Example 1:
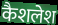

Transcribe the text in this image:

कैशलेश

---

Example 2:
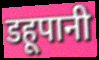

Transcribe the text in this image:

डहूपानी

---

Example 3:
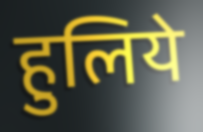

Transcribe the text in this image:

हुलिये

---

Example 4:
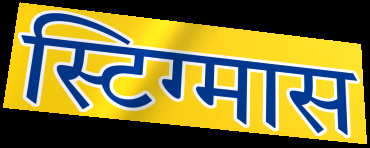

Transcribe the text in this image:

स्टिग्मास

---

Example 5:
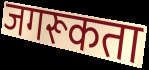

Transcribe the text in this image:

जगरूकता